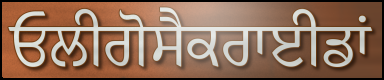
ਓਲੀਗੋਸੈਕਰਾਈਡਾਂ